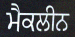
ਮੈਕਲੀਨ